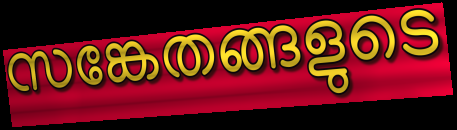
സങ്കേതങ്ങളുടെ